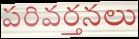
పరివర్తనలు